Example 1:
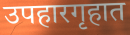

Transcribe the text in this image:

उपहारगृहात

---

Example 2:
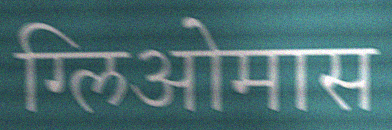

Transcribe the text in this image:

ग्लिओमास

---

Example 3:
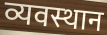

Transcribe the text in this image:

व्यवस्थान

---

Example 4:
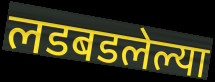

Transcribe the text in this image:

लडबडलेल्या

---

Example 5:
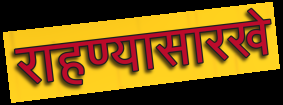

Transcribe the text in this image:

राहण्यासारखे